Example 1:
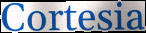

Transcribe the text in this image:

Cortesia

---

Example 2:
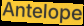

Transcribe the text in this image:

Antelope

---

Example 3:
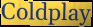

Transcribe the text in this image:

Coldplay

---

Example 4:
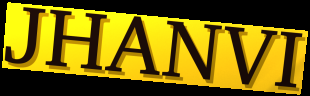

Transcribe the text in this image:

JHANVI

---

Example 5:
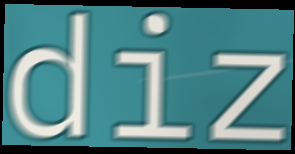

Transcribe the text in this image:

diz